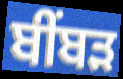
ਬੀੰਬੜ